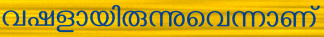
വഷളായിരുന്നുവെന്നാണ്